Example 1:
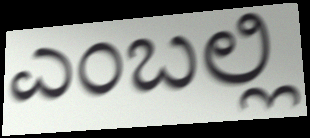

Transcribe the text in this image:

ಎಂಬಲ್ಲಿ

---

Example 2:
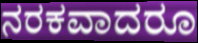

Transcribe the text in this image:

ನರಕವಾದರೂ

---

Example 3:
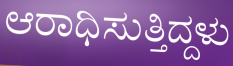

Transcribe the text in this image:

ಆರಾಧಿಸುತ್ತಿದ್ದಳು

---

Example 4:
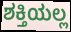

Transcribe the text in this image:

ಶಕ್ತಿಯಲ್ಲ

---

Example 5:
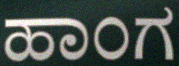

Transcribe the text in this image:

ಹಾಂಗ